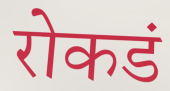
रोकडं